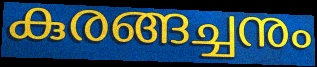
കുരങ്ങച്ചനും